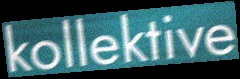
kollektive